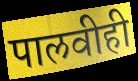
पालवीही